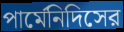
পার্মেনিদিসের